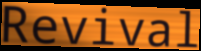
Revival